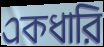
একধারি